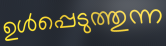
ഉൾപ്പെടുത്തുന്ന